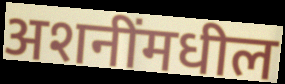
अशनींमधील